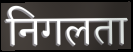
निगलता